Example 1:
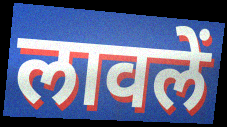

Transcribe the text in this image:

लावलें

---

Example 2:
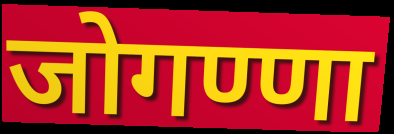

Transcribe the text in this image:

जोगण्णा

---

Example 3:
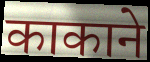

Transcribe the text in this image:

काकाने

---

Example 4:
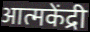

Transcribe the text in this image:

आत्मकेंद्री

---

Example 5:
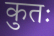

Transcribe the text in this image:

कुतः